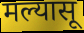
मल्यासू